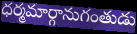
ధర్మమార్గానుగంతుడు